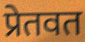
प्रेतवत